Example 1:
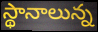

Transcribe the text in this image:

స్థానాలున్న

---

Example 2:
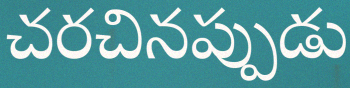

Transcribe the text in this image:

చరచినప్పుడు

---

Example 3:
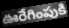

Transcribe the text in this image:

ఊరేగింపుకి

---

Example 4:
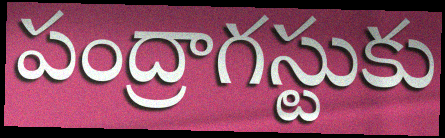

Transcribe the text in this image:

పంద్రాగస్టుకు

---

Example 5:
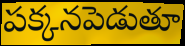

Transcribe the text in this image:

పక్కనపెడుతూ